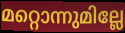
മറ്റൊന്നുമില്ലേ